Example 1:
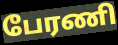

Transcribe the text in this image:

பேரணி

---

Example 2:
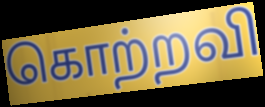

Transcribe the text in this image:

கொற்றவி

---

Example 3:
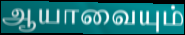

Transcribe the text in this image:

ஆயாவையும்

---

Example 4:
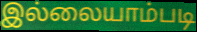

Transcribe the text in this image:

இல்லையாம்படி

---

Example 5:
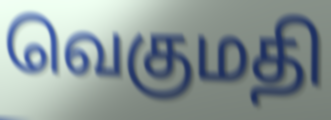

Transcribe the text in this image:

வெகுமதி